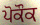
ਪੋਕੌਕ